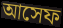
আসেফ